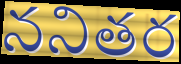
ననితర